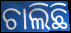
ଚାଲିଛି